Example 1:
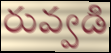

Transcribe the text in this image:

రువ్వడి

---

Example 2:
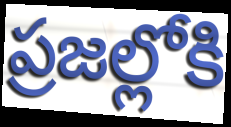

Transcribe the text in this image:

ప్రజల్లోకి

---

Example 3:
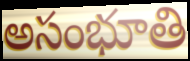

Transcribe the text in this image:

అసంభూతి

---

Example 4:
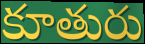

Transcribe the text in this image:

కూతురు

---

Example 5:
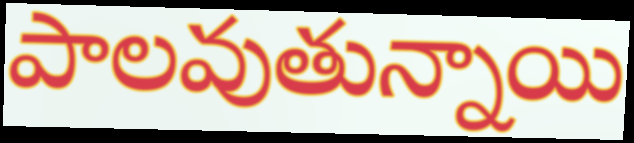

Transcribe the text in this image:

పాలవుతున్నాయి